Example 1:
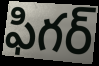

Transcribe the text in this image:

ఫిగర్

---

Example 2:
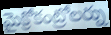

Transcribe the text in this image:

మైక్రోకంట్రోలర్ను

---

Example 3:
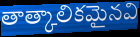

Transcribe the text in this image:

తాత్కాలికమైనవి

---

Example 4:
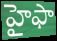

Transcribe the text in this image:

హైఫా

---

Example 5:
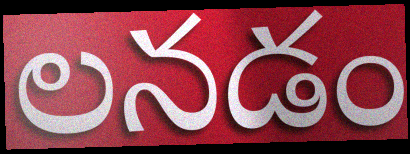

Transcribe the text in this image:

లనడం